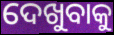
ଦେଖୁବାକୁ